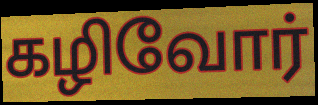
கழிவோர்